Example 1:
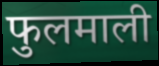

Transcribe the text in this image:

फुलमाली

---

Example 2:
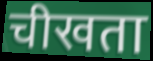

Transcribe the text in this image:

चीखता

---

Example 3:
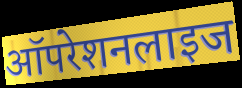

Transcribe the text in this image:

ऑपरेशनलाइज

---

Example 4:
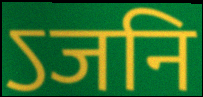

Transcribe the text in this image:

ऽजनि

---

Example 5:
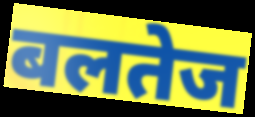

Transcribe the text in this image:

बलतेज